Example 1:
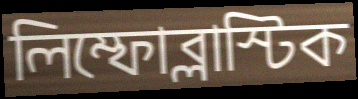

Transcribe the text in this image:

লিম্ফোব্লাস্টিক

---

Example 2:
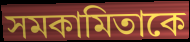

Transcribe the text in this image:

সমকামিতাকে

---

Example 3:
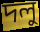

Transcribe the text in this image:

দলু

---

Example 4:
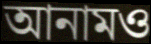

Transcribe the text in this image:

আনামও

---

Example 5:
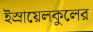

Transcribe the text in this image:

ইস্রায়েলকুলের